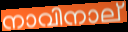
നാവിനാല്